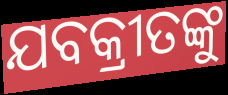
ଯବକ୍ରୀତଙ୍କୁ